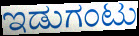
ಇಡುಗಂಟು